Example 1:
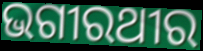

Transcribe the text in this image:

ଭଗୀରଥୀର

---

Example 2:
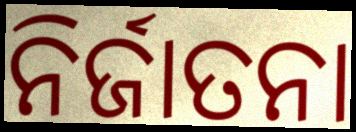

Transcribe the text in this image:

ନିର୍ଜାତନା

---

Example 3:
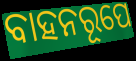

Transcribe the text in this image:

ବାହନରୂପେ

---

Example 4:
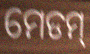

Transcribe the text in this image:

ମେଡମ୍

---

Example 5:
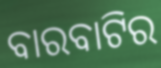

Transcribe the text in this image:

ବାରବାଟିର